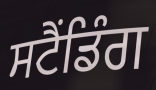
ਸਟੈਂਡਿੰਗ